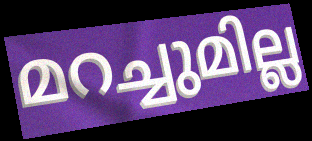
മറച്ചുമില്ല